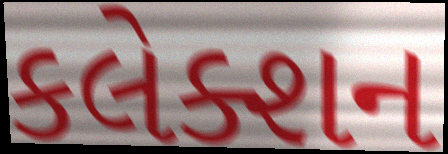
કલેક્શન